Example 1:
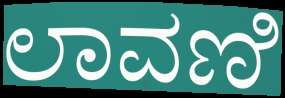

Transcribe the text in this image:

ಲಾವಣಿ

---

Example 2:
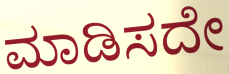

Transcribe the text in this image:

ಮಾಡಿಸದೇ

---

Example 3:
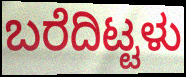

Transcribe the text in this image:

ಬರೆದಿಟ್ಟಳು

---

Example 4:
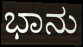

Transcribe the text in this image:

ಭಾನು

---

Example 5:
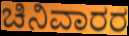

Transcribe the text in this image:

ಚಿನಿವಾರರ